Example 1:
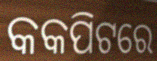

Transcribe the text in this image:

କକପିଟରେ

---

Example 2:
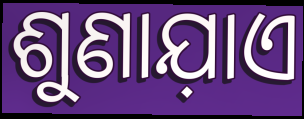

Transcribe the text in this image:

ଶୁଣାଯ଼ାଏ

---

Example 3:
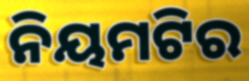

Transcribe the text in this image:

ନିୟମଟିର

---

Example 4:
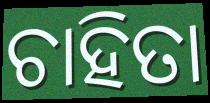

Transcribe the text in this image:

ଚାହିତା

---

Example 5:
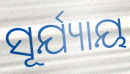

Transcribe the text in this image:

ସୂର୍ଯ୍ୟାୟ